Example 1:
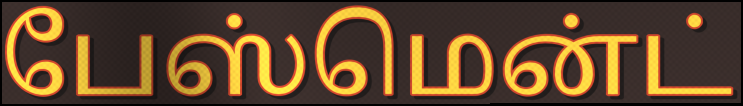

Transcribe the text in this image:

பேஸ்மென்ட்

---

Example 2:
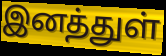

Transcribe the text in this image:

இனத்துள்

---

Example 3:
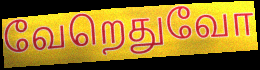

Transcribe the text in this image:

வேறெதுவோ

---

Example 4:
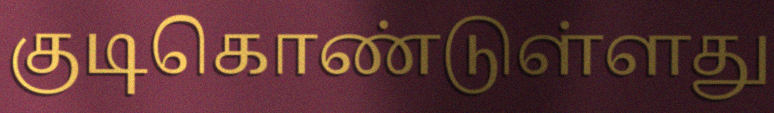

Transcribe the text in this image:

குடிகொண்டுள்ளது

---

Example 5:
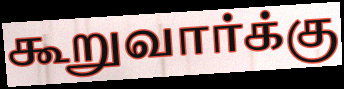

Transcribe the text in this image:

கூறுவார்க்கு